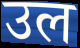
उल